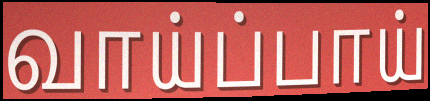
வாய்ப்பாய்